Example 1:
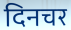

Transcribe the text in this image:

दिनचर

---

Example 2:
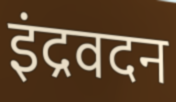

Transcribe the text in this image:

इंद्रवदन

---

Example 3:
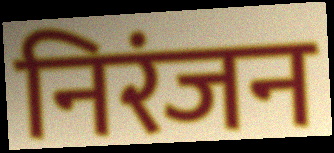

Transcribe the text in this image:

निरंजन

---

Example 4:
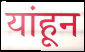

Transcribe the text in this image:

यांहून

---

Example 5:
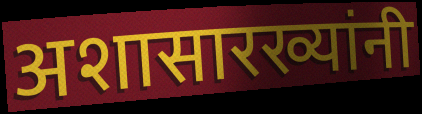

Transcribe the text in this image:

अशासारख्यांनी